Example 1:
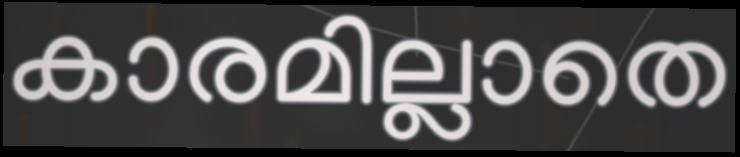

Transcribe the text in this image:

കാരമില്ലാതെ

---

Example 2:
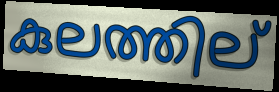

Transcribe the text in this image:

കുലത്തില്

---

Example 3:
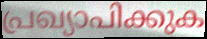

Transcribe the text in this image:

പ്രഖ്യാപിക്കുക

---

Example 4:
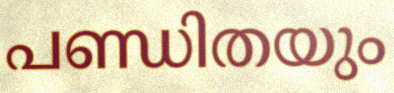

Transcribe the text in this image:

പണ്ഡിതയും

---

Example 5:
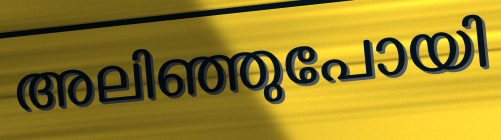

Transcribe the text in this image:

അലിഞ്ഞുപോയി